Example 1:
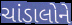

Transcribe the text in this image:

ચાંડાલોને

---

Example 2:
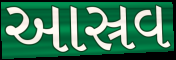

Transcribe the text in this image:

આસ્રવ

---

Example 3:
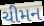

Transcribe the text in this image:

ચીમન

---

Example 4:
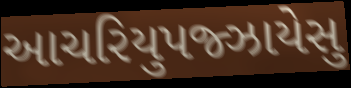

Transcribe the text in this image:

આચરિયુપજ્ઝાયેસુ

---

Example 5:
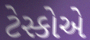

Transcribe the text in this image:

ટેસ્કોએ